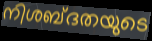
നിശബ്ദതയുടെ